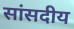
सांसदीय